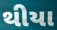
થીયા